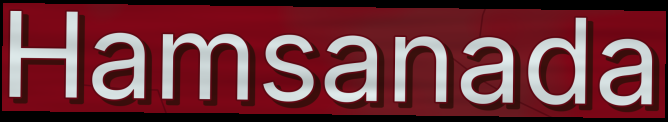
Hamsanada